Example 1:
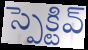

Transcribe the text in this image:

స్పెక్టివ్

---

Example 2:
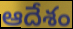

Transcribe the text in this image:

ఆదేశం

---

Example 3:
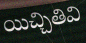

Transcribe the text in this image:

యిచ్చితివి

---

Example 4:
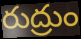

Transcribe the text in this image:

రుద్రుం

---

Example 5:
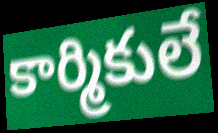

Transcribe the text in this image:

కార్మికులే